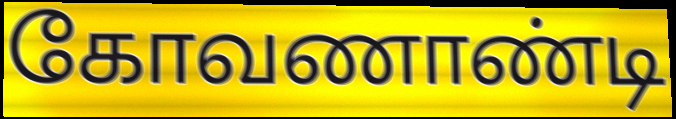
கோவணாண்டி